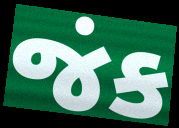
જંક